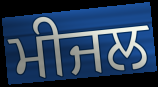
ਮੀਜਲ